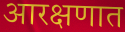
आरक्षणात